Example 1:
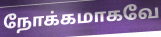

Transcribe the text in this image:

நோக்கமாகவே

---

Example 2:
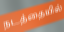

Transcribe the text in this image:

நடத்தையில்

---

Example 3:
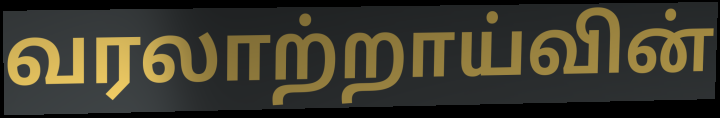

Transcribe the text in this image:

வரலாற்றாய்வின்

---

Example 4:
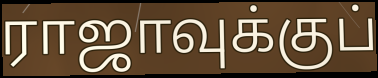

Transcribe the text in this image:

ராஜாவுக்குப்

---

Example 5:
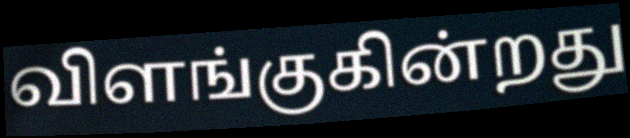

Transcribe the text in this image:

விளங்குகின்றது